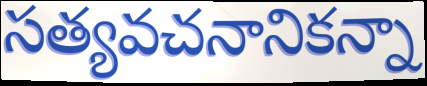
సత్యవచనానికన్నా